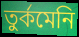
তুর্কমেনি